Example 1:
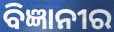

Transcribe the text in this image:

ବିଜ୍ଞାନୀର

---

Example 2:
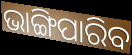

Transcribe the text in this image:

ଭାଙ୍ଗିପାରିବ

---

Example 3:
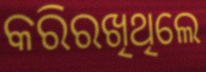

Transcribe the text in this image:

କରିରଖିଥିଲେ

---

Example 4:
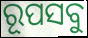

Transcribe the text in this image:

ରୂପସବୁ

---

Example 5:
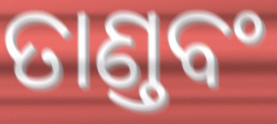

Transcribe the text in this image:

ତାଣ୍ଡବଂ